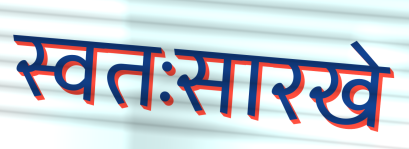
स्वतःसारखे